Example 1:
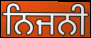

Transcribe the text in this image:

ਨਿਜਨੀ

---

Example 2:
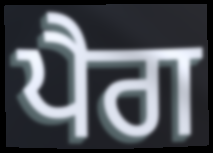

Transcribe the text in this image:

ਪੈਗ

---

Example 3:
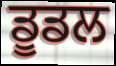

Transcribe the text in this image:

ਡੂਡਲ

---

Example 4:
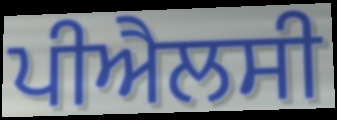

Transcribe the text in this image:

ਪੀਐਲਸੀ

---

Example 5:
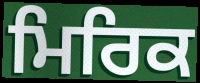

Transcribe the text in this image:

ਮਿਰਿਕ